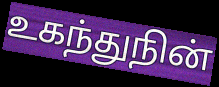
உகந்துநின்